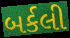
બર્કલી